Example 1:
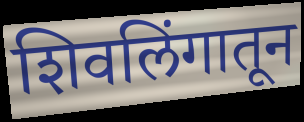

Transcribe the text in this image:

शिवलिंगातून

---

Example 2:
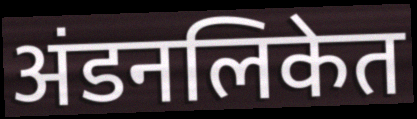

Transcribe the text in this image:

अंडनलिकेत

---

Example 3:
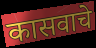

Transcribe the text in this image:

कासवाचे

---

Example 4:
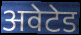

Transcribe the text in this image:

अवेटेड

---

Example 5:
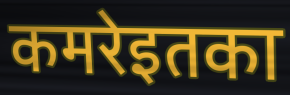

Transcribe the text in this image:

कमरेइतका